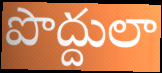
పొద్దులా